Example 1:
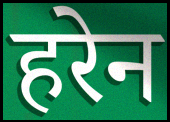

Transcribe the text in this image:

हरेन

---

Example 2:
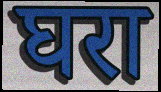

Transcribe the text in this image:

घरा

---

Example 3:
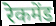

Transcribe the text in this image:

रेकमेंड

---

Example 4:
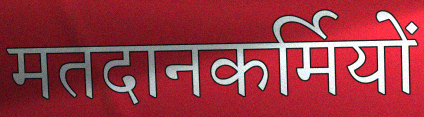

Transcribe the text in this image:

मतदानकर्मियों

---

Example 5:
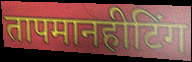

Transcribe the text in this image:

तापमानहीटिंग